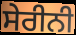
ਸੇਰੀਨੀ